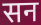
सन